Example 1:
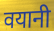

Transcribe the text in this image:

वयानी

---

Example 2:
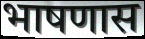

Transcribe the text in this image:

भाषणास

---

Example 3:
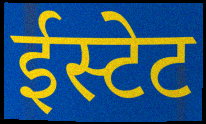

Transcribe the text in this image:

ईस्टेट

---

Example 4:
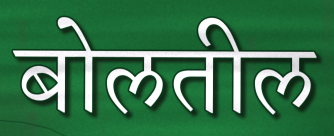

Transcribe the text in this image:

बोलतील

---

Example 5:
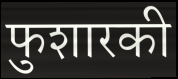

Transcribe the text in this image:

फुशारकी